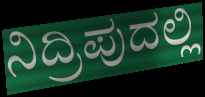
ನಿದ್ರಿಪುದಲ್ಲಿ